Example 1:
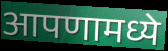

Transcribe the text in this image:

आपणामध्ये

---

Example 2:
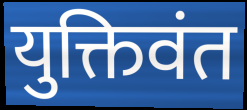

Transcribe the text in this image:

युक्तिवंत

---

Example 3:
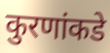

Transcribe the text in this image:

कुरणांकडे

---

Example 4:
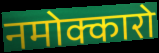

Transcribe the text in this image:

नमोक्कारो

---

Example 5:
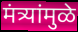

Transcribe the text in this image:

मंत्र्यांमुळे